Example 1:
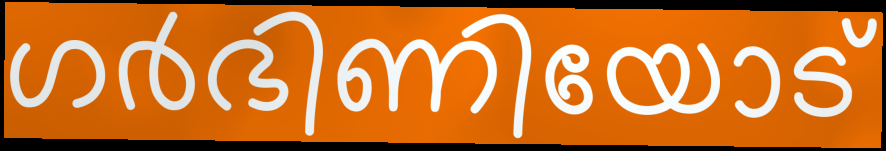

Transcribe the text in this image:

ഗർഭിണിയോട്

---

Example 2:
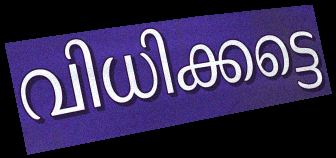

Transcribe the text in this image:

വിധിക്കട്ടെ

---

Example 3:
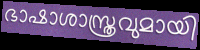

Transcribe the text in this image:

ഭാഷാശാസ്ത്രവുമായി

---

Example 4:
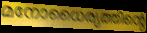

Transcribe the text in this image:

മനോധൈര്യത്തിന്റെ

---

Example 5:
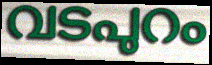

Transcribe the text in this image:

വടപുറം